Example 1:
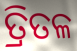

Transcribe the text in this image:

ତ୍ରିତଳ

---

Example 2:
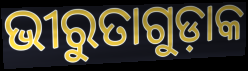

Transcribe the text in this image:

ଭୀରୁତାଗୁଡ଼ାକ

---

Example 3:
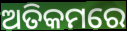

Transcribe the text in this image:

ଅତିକମରେ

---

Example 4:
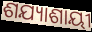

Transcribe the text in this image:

ଶଯ୍ୟାଶାୟୀ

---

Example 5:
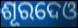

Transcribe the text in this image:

ଶୂରଦେଓ